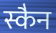
स्‍कैन